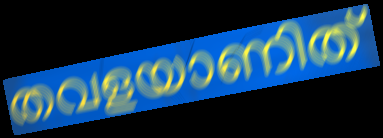
തവളയാണിത്